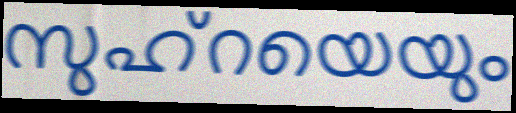
സുഹ്റയെയും